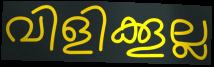
വിളിക്കൂല്ല